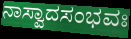
ನಾಸ್ವಾದಸಂಭವಃ